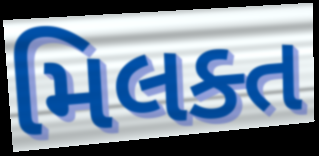
મિલક્ત